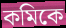
কমিকে